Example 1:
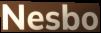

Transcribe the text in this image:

Nesbo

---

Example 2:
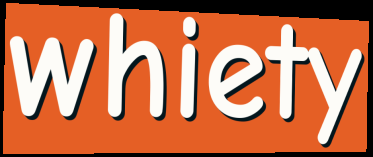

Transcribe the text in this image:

whiety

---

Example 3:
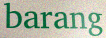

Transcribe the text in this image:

barang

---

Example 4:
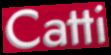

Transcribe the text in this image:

Catti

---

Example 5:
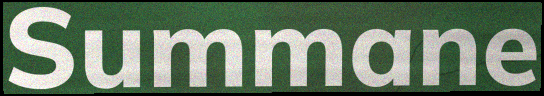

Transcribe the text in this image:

Summane